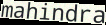
mahindra